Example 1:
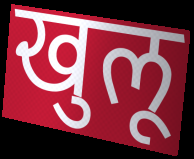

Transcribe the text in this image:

खुलू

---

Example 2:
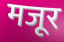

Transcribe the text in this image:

मजूर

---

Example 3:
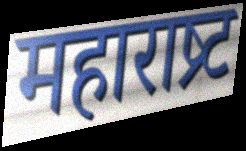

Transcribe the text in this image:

महाराष्र्ट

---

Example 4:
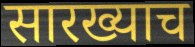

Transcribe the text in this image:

सारख्याच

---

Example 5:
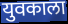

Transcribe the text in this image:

युवकाला